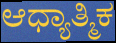
ಆಧ್ಯಾತ್ಮಿಕ